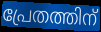
പ്രേതത്തിന്